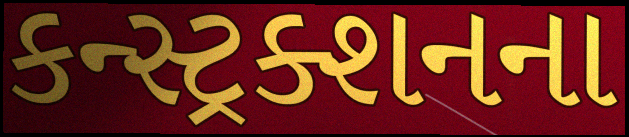
કન્સ્ટ્રક્શનના